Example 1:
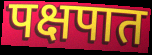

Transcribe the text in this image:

पक्षपात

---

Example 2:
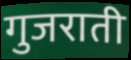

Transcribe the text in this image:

गुजराती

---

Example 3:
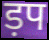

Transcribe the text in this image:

ड़प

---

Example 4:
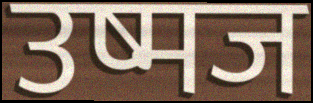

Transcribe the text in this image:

उष्मज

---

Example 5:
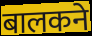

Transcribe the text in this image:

बालकने